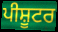
ਪੀਸ਼ੂਟਰ